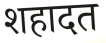
शहादत